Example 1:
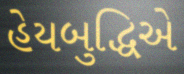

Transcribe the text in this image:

હેયબુદ્ધિએ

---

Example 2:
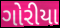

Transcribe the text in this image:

ગોરીયા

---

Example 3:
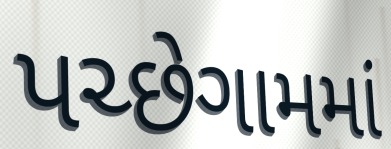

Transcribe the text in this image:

પચ્છેગામમાં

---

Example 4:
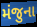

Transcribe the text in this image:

મંજુના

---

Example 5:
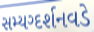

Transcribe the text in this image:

સમ્યગ્દર્શનવડે